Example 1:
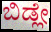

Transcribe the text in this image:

ಬಿಡ್ಲೇ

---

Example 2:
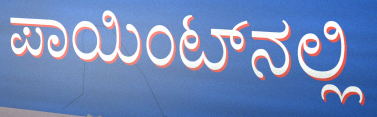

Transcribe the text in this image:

ಪಾಯಿಂಟ್‌ನಲ್ಲಿ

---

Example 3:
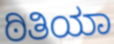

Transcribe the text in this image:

ಠಿತಿಯಾ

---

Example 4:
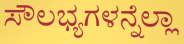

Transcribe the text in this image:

ಸೌಲಭ್ಯಗಳನ್ನೆಲ್ಲಾ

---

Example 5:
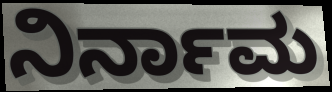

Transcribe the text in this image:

ನಿರ್ನಾಮ